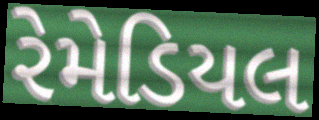
રેમેડિયલ